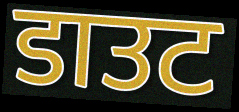
डाउट